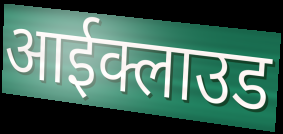
आईक्लाउड